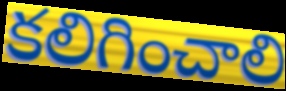
కలిగించాలి